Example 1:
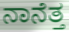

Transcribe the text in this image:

ನಾನೆತ್ತ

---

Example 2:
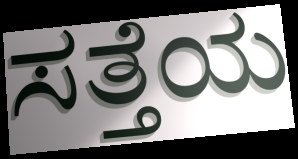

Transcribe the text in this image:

ಸತ್ತೆಯ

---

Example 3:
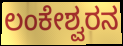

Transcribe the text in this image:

ಲಂಕೇಶ್ವರನ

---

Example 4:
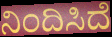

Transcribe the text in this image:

ನಿಂದಿಸಿದೆ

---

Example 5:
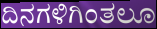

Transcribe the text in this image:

ದಿನಗಳಿಗಿಂತಲೂ